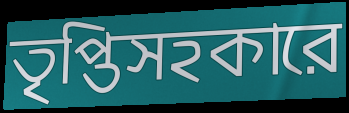
তৃপ্তিসহকারে